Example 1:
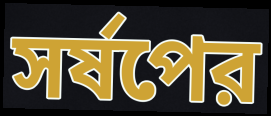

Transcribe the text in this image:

সর্ষপের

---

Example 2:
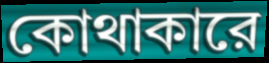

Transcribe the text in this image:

কোথাকারে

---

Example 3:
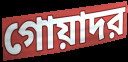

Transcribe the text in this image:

গোয়াদর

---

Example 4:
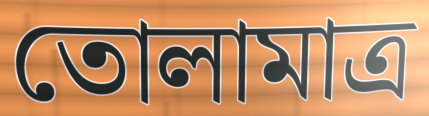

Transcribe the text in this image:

তোলামাত্র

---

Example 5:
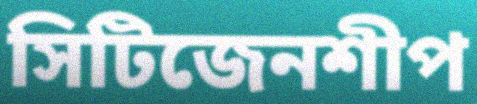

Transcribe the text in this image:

সিটিজেনশীপ